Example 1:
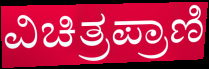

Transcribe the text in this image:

ವಿಚಿತ್ರಪ್ರಾಣಿ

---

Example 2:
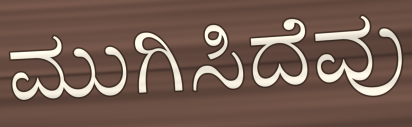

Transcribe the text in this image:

ಮುಗಿಸಿದೆವು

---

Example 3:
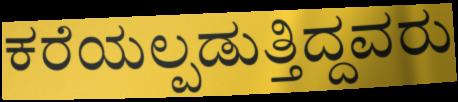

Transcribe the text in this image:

ಕರೆಯಲ್ಪಡುತ್ತಿದ್ದವರು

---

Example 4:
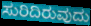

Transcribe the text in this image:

ಸುರಿದಿರುವುದು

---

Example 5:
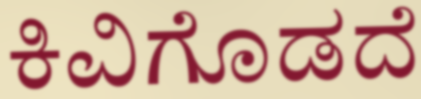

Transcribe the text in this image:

ಕಿವಿಗೊಡದೆ